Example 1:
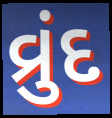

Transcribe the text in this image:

વ્રુંદ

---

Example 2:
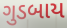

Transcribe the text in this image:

ગુડબાય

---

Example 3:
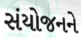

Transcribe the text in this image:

સંયોજનને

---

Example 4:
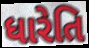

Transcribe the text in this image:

ધારેતિ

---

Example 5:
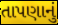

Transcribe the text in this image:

તાપણાનું